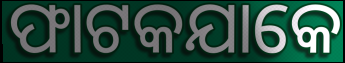
ଫାଟକଯାକେ